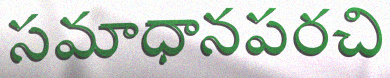
సమాధానపరచి